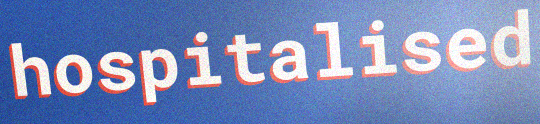
hospitalised